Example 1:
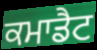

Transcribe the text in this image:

ਕਮਾਡੈਟ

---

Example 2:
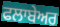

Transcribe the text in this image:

ਫਲਾਬੇਅਰ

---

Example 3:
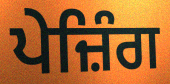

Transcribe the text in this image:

ਪੇਜ਼ਿੰਗ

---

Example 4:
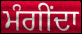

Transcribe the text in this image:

ਮੰਗੀਂਦਾ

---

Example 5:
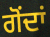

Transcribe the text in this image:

ਗੋਂਦਾਂ